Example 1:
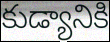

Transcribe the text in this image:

కుడ్యానికి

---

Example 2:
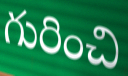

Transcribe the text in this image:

గురించి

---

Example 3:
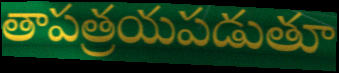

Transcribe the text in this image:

తాపత్రయపడుతూ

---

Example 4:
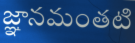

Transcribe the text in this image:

జ్ఞానమంతటి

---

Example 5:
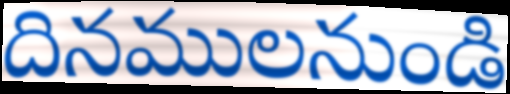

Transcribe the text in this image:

దినములనుండి